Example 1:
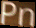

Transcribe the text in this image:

Pn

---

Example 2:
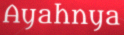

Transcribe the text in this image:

Ayahnya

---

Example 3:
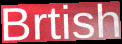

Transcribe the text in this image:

Brtish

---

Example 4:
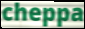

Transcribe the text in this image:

cheppa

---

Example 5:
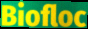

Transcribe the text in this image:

Biofloc